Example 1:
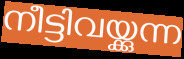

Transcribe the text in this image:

നീട്ടിവയ്ക്കുന്ന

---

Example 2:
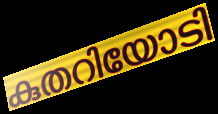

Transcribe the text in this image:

കുതറിയോടി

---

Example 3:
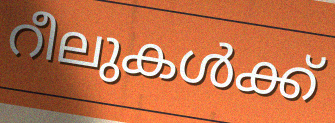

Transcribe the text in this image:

റീലുകൾക്ക്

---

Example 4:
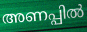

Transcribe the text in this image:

അണപ്പിൽ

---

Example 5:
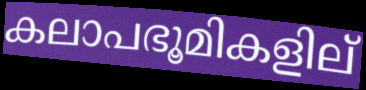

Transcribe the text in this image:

കലാപഭൂമികളില്